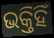
ଭକ୍ତିହିଁ